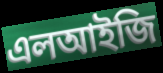
এলআইজি